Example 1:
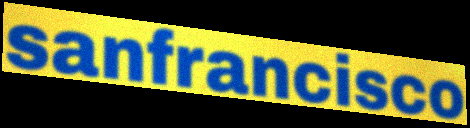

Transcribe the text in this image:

sanfrancisco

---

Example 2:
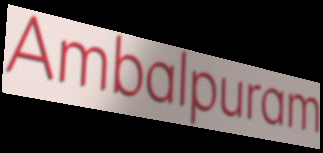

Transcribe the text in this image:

Ambalpuram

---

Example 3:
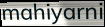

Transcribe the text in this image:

mahiyarni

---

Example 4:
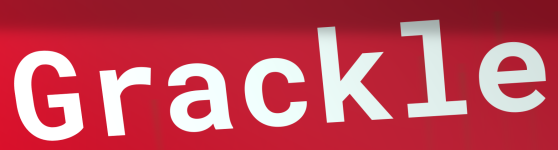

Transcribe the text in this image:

Grackle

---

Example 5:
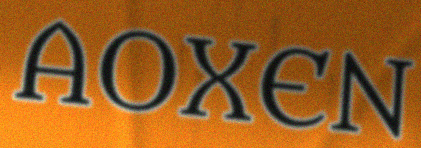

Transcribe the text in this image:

AOXEN